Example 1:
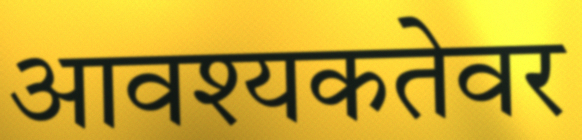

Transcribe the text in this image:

आवश्यकतेवर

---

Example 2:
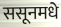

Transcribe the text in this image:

ससूनमधे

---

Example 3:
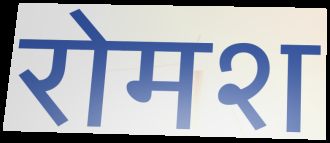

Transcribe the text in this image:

रोमश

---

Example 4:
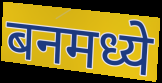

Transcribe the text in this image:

बनमध्ये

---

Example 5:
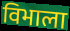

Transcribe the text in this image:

विभाला